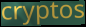
cryptos